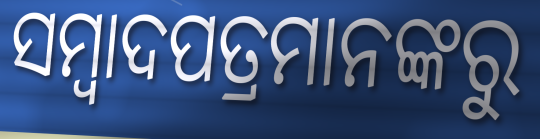
ସମ୍ୱାଦପତ୍ରମାନଙ୍କରୁ